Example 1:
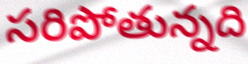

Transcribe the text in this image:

సరిపోతున్నది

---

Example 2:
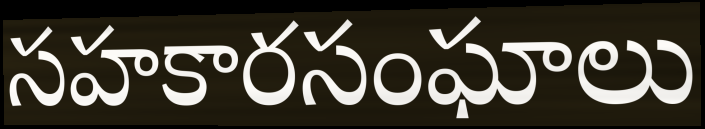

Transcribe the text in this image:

సహకారసంఘాలు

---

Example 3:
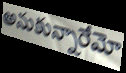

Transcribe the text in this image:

అనుకున్నారేమో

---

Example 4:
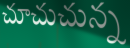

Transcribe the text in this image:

చూచుచున్న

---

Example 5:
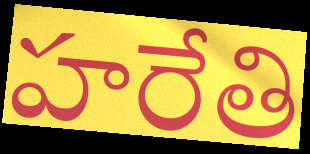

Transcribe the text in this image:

హరేతి